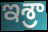
ఇశ్రా